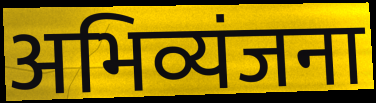
अभिव्यंजना